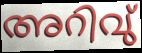
അറിവു്